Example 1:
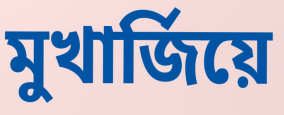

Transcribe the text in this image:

মুখাৰ্জিয়ে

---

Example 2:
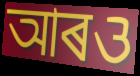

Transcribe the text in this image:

আৰও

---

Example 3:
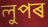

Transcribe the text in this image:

লুপৰ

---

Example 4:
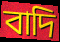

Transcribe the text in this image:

বাদি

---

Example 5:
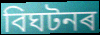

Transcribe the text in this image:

বিঘটনৰ